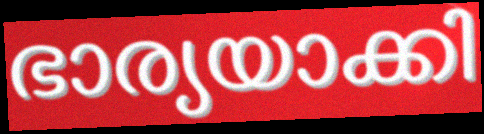
ഭാര്യയാക്കി